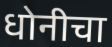
धोनीचा